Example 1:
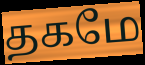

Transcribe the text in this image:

தகமே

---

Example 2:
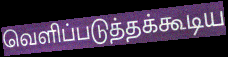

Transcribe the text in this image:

வெளிப்படுத்தக்கூடிய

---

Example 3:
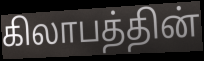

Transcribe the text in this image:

கிலாபத்தின்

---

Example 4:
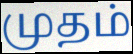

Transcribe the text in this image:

முதம்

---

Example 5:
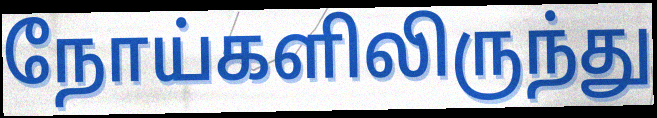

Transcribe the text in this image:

நோய்களிலிருந்து